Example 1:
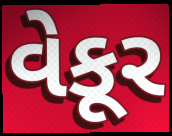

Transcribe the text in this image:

વેકૂર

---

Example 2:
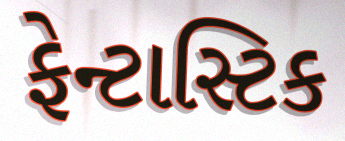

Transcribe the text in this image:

ફેન્ટાસ્ટિક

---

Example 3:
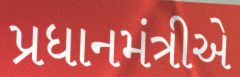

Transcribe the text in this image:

પ્રધાનમંત્રીએ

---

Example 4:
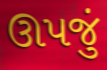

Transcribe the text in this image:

ઊપજું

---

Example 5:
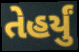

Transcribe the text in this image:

તેહર્યું